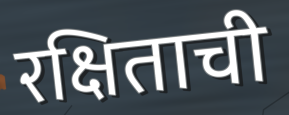
रक्षिताची